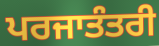
ਪਰਜਾਤੰਤਰੀ